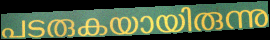
പടരുകയായിരുന്നു